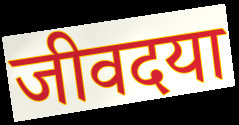
जीवदया